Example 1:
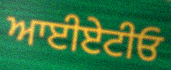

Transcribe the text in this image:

ਆਈਏਟੀਓ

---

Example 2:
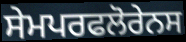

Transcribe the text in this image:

ਸੇਮਪਰਫਲੋਰੇਨਸ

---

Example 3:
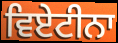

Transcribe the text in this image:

ਵਿਏਟੀਨਾ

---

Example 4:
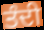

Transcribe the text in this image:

ਤੰਦੀ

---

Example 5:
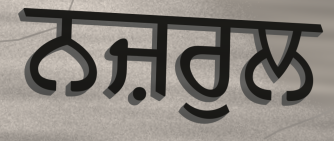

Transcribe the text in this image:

ਨਜ਼ਰੁਲ